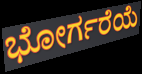
ಭೋರ್ಗರೆಯೆ